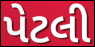
પેટલી